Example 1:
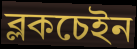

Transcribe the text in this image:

ব্লকচেইন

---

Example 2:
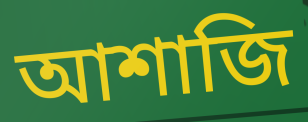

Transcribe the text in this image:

আশাজি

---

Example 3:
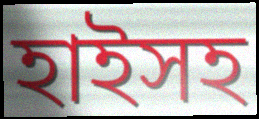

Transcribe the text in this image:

হাইসহ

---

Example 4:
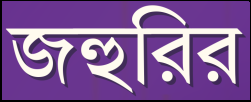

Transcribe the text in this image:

জহুরির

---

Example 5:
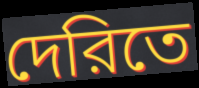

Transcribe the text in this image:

দেরিতে